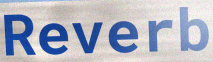
Reverb